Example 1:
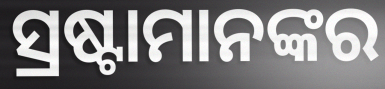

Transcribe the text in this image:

ସ୍ରଷ୍ଟାମାନଙ୍କର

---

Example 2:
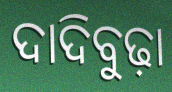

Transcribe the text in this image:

ଦାଦିବୁଢ଼ା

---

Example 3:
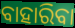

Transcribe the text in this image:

ବାହାରିବା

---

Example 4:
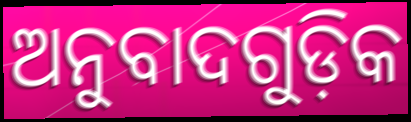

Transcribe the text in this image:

ଅନୁବାଦଗୁଡ଼ିକ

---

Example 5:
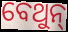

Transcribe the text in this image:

ବେଥୁନ୍